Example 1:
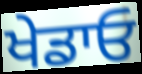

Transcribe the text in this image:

ਖੇਡਾਓ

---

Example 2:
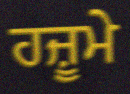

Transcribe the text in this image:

ਹਜ਼ੂਮੇ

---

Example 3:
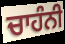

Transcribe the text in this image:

ਚਾਹੰਨੀ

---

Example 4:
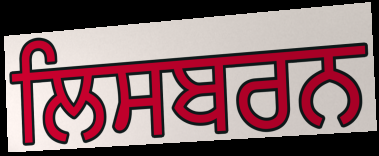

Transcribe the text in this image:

ਲਿਸਬਰਨ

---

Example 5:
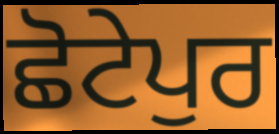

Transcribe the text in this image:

ਛੋਟੇਪੁਰ